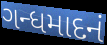
ગન્ધમાદનં